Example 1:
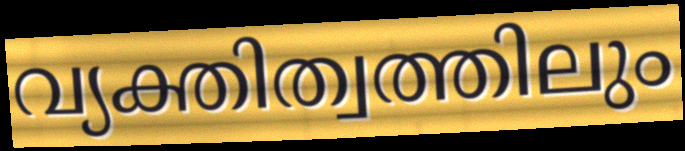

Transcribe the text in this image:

വ്യക്തിത്വത്തിലും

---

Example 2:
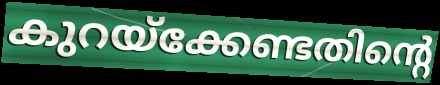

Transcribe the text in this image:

കുറയ്ക്കേണ്ടതിന്റെ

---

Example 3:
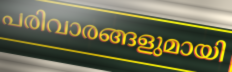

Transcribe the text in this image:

പരിവാരങ്ങളുമായി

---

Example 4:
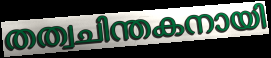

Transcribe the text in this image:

തത്വചിന്തകനായി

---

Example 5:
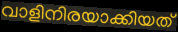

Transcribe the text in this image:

വാളിനിരയാക്കിയത്